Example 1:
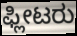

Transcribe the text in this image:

ಫ್ಲೀಟರು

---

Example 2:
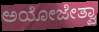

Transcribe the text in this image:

ಅಯೋಜೇತ್ವಾ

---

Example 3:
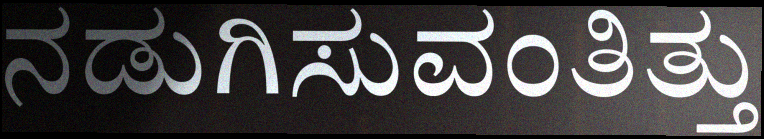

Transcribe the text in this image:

ನಡುಗಿಸುವಂತಿತ್ತು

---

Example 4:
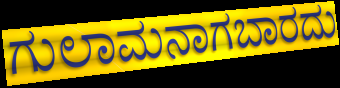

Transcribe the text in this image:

ಗುಲಾಮನಾಗಬಾರದು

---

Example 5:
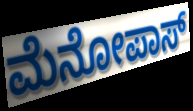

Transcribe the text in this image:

ಮೆನೋಪಾಸ್